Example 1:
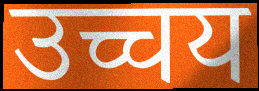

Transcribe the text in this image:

उच्चय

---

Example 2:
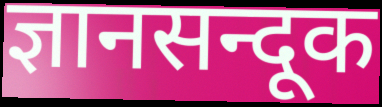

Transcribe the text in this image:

ज्ञानसन्दूक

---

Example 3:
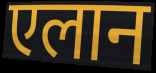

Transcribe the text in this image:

एलान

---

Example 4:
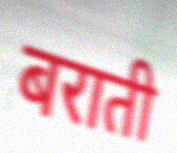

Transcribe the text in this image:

बराती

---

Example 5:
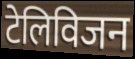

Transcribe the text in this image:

टेलिविजन